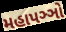
મહાપઞ્ઞો